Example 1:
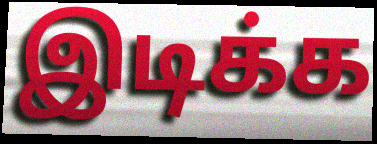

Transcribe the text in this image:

இடிக்க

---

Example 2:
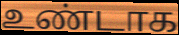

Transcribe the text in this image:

உண்டாக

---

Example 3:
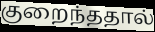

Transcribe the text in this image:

குறைந்ததால்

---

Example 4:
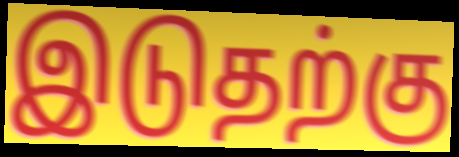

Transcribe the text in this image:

இடுதற்கு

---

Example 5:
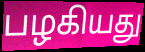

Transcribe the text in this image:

பழகியது